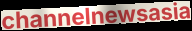
channelnewsasia